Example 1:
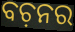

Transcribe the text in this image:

ବଚ଼ନର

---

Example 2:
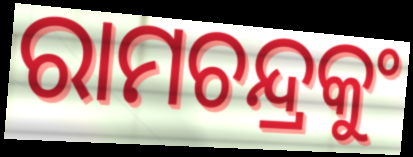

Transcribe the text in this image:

ରାମଚନ୍ଦ୍ରକୁଂ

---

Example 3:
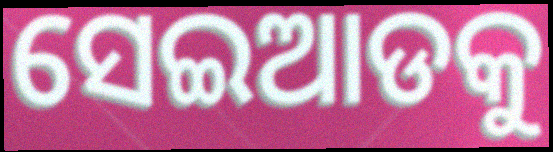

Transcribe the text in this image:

ସେଇଆଡକୁ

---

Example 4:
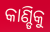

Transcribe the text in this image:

କାଣ୍ଡିକୁ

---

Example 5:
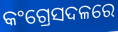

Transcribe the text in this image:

କଂଗ୍ରେସଦଳରେ